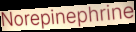
Norepinephrine